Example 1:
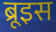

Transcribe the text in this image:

ब्रूइस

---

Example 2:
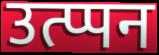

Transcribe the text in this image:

उत्प्पन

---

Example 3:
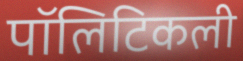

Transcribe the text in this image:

पॉलिटिकली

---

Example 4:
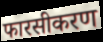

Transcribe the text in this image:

फारसीकरण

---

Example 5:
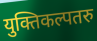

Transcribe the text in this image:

युक्तिकल्पतरु